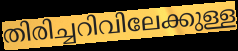
തിരിച്ചറിവിലേക്കുള്ള